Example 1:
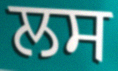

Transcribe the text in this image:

ਲਸ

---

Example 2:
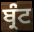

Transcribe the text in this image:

ਬ੍ਰੰਟ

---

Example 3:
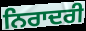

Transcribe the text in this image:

ਨਿਰਾਦਰੀ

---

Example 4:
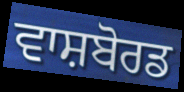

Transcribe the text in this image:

ਵਾਸ਼ਬੋਰਡ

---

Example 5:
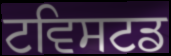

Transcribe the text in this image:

ਟਵਿਸਟਡ